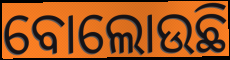
ବୋଲୋଉଛି